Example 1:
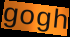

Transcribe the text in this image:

gogh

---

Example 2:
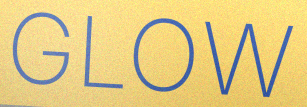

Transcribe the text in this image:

GLOW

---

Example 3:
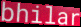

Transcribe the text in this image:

bhilar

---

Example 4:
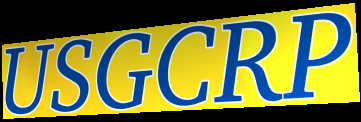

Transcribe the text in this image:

USGCRP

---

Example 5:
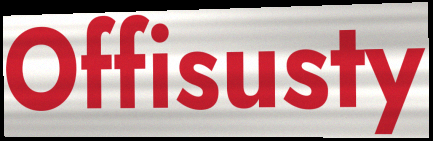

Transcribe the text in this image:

Offisusty